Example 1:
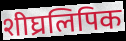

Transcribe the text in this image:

शीघ्रलिपिक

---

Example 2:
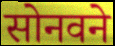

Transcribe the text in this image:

सोनवने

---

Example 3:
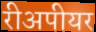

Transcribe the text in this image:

रीअपीयर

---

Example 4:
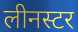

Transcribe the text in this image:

लीनस्टर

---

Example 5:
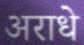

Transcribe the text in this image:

अराधे